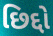
છિદ્દો